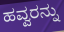
ಹವ್ವರನ್ನು